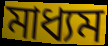
মাধ্যম